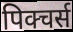
पिक्चर्स